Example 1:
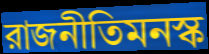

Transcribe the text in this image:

রাজনীতিমনস্ক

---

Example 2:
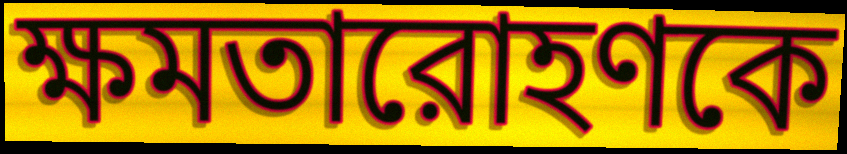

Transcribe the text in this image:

ক্ষমতারোহণকে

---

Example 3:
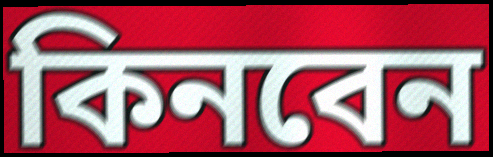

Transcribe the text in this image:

কিনবেন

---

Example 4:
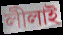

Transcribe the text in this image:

লীলাই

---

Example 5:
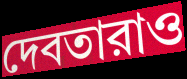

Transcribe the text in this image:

দেবতারাও